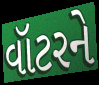
વૉટરને